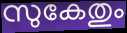
സുകേതും